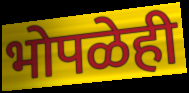
भोपळेही